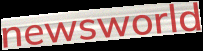
newsworld